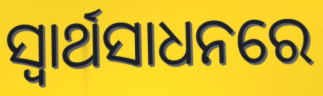
ସ୍ବାର୍ଥସାଧନରେ